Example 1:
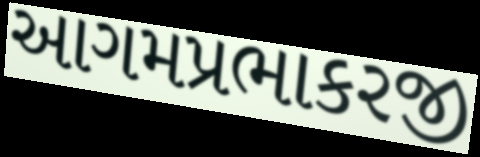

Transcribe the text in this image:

આગમપ્રભાકરજી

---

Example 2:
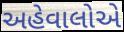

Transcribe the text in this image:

અહેવાલોએ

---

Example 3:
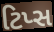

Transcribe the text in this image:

ટિપ્સ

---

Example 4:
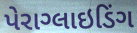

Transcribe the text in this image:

પેરાગ્લાઇડિંગ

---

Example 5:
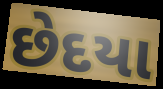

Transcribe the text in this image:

છેદયા